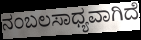
ನಂಬಲಸಾಧ್ಯವಾಗಿದೆ